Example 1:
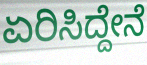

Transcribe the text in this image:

ಏರಿಸಿದ್ದೇನೆ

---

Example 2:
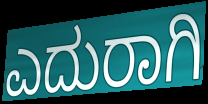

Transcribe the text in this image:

ಎದುರಾಗಿ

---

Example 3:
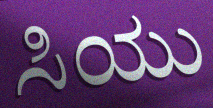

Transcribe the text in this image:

ಸಿಯು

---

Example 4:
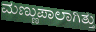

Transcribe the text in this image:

ಮಣ್ಣುಪಾಲಾಗಿತ್ತು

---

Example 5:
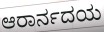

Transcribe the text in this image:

ಆರಾರ್ನದಯ